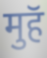
मुहॅ